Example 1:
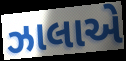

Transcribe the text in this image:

ઝાલાએ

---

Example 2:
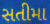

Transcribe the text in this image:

સતીમા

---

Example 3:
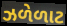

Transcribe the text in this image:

ઝળેળાટ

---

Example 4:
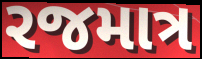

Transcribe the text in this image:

રજમાત્ર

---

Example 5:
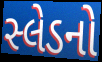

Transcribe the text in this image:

સ્લેડનો